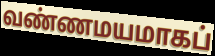
வண்ணமயமாகப்